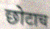
छोटाच